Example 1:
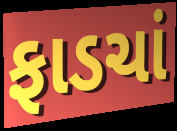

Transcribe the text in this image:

ફાડચાં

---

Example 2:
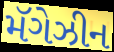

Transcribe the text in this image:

મૅગેઝીન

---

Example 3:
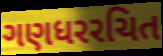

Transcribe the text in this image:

ગણધરરચિત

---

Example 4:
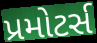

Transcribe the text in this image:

પ્રમોટર્સ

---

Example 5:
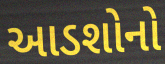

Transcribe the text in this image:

આડશોનો